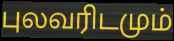
புலவரிடமும்